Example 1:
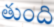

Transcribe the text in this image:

తుంది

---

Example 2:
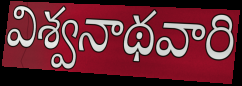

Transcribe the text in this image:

విశ్వనాథవారి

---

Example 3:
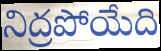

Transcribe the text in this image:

నిద్రపోయేది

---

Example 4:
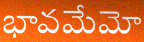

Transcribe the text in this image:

భావమేమో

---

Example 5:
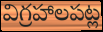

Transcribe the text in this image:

విగ్రహాలపట్ల